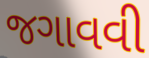
જગાવવી